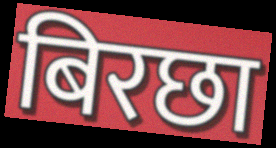
बिरछा